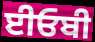
ਈਓਬੀ